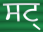
ਸਟ੍